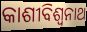
କାଶୀବିଶ୍ଵନାଥ